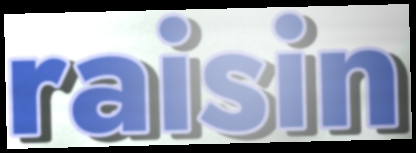
raisin